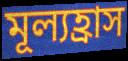
মূল্যহ্রাস